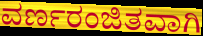
ವರ್ಣರಂಜಿತವಾಗಿ